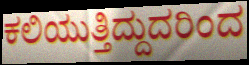
ಕಲಿಯುತ್ತಿದ್ದುದರಿಂದ